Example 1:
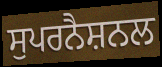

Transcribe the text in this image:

ਸੁਪਰਨੈਸ਼ਨਲ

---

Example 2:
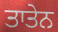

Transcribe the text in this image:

ਤਾਤੇਨ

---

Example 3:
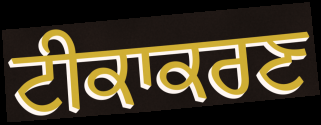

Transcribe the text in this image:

ਟੀਕਾਕਰਣ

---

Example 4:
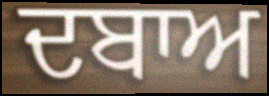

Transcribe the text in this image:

ਦਬਾਅ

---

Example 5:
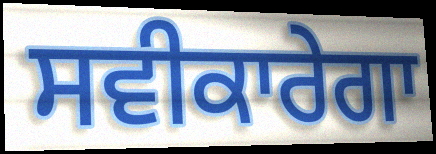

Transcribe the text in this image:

ਸਵੀਕਾਰੇਗਾ